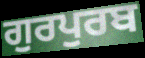
ਗੁਰਪੁਰਬ